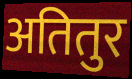
अतितुर